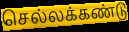
செல்லக்கண்டு